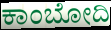
ಕಾಂಬೋದಿ